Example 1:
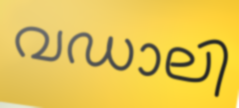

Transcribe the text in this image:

വഡാലി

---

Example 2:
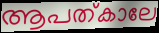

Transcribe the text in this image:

ആപത്കാലേ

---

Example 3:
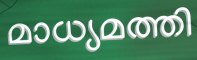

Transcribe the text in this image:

മാധ്യമത്തി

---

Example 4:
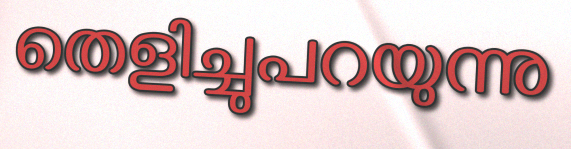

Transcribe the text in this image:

തെളിച്ചുപറയുന്നു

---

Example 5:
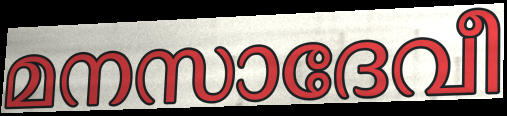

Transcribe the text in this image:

മനസാദേവീ